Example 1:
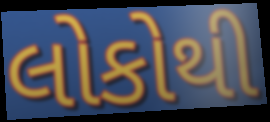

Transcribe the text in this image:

લોકોથી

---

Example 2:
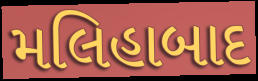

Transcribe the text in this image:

મલિહાબાદ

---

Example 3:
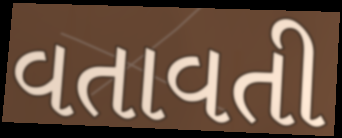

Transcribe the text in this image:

વતાવતી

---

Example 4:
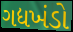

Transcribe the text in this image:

ગદ્યખંડો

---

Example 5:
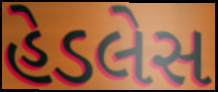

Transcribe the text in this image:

હેડલેસ